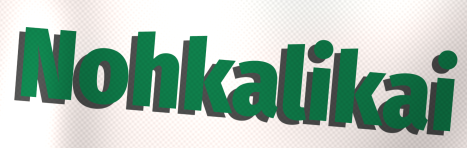
Nohkalikai